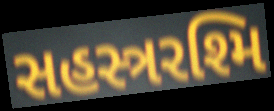
સહસ્ત્રરશ્મિ